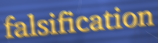
falsification